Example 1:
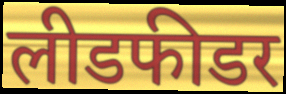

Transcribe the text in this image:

लीडफीडर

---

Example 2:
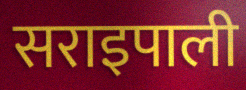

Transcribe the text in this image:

सराइपाली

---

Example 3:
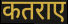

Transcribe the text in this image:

कतराए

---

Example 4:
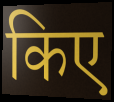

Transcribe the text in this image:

किए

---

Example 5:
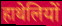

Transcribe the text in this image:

हाथेलियों